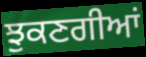
ਝੁਕਣਗੀਆਂ